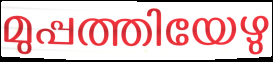
മുപ്പത്തിയേഴു